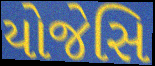
યોજેસિ